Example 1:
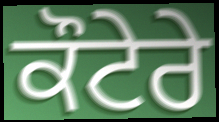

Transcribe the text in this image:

ਕੌਟੇਰੇ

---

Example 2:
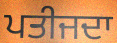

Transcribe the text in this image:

ਪਤੀਜਦਾ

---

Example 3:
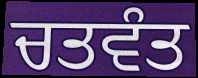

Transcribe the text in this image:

ਚਤਵੰਤ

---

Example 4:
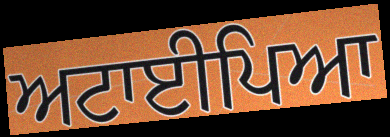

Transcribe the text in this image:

ਅਟਾਈਪਿਆ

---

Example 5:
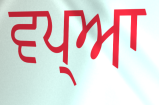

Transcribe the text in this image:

ਵਪ੍ਆ